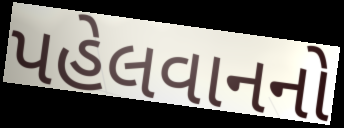
પહેલવાનનો